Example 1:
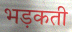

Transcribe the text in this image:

भड़कती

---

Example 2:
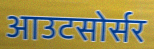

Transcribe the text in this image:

आउटसोर्सर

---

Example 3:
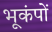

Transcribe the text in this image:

भूकंपों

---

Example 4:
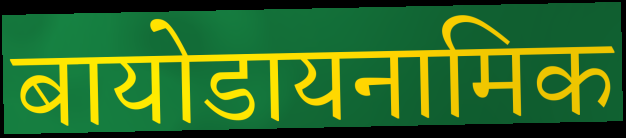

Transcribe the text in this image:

बायोडायनामिक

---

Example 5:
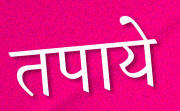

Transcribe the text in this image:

तपाये